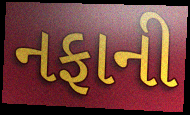
નફાની